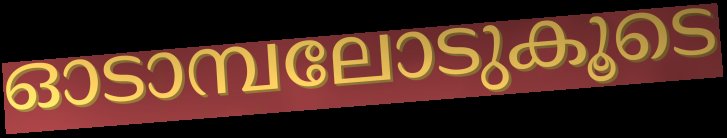
ഓടാമ്പലോടുകൂടെ